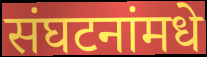
संघटनांमधे